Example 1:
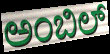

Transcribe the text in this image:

ಅಂಬಿಲ್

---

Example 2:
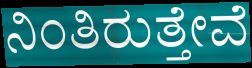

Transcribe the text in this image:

ನಿಂತಿರುತ್ತೇವೆ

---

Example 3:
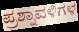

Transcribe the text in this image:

ಪ್ರಶ್ನಾವಳಿಗಳ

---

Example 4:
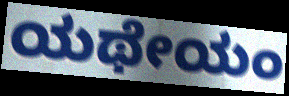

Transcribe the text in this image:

ಯಥೇಯಂ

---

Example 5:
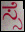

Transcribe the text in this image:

ಸ್ಸೆ